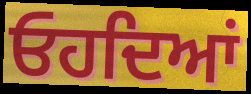
ਓਹਦਿਆਂ